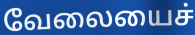
வேலையைச்